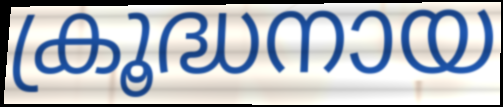
ക്രൂദ്ധനായ